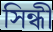
সিন্ধী